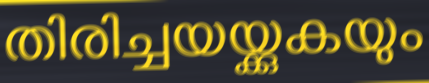
തിരിച്ചയയ്ക്കുകയും